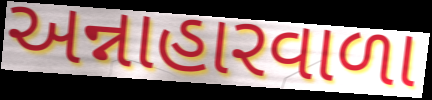
અન્નાહારવાળા